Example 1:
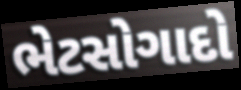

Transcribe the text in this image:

ભેટસોગાદો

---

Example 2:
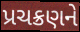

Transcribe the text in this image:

પ્રચક્રણને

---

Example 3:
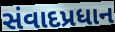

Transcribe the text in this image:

સંવાદપ્રધાન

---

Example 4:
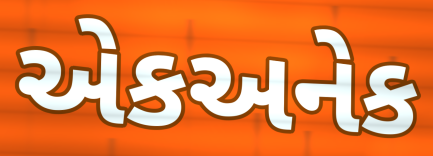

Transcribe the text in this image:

એકઅનેક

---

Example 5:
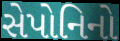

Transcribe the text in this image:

સેપોનિનો